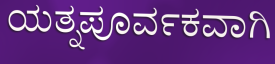
ಯತ್ನಪೂರ್ವಕವಾಗಿ